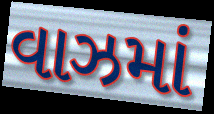
વાઝમાં